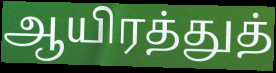
ஆயிரத்துத்